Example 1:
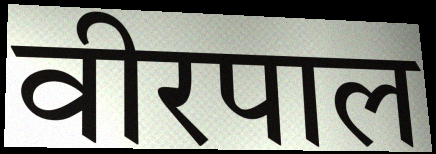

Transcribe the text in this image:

वीरपाल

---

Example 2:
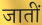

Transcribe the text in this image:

जातीं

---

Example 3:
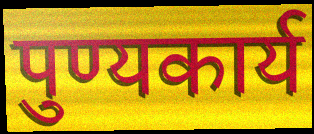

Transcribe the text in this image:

पुण्यकार्य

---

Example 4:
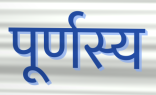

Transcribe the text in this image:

पूर्णस्य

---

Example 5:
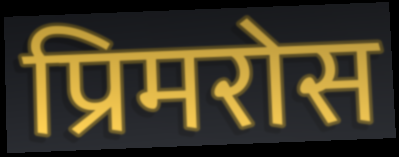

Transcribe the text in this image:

प्रिमरोस